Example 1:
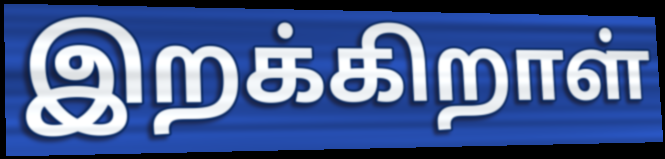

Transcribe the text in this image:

இறக்கிறாள்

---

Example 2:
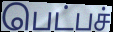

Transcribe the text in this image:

பெட்பச்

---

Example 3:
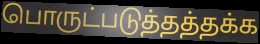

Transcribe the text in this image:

பொருட்படுத்தத்தக்க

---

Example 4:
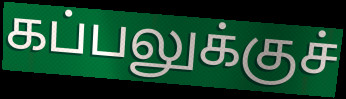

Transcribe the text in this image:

கப்பலுக்குச்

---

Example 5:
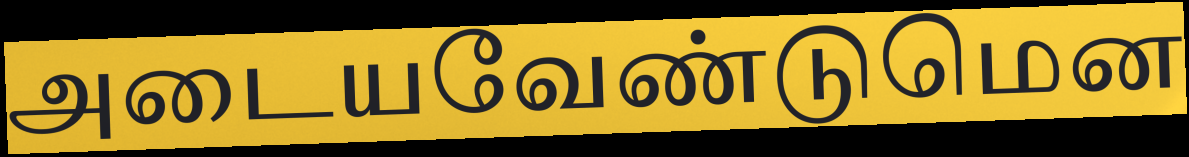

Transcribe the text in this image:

அடையவேண்டுமென